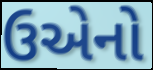
ઉએનો